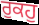
ਰੁਕਹੁ